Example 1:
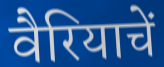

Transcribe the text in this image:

वैरियाचें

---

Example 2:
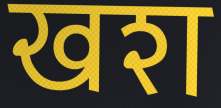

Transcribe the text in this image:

खश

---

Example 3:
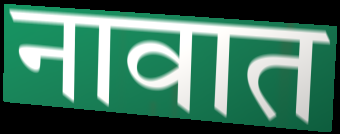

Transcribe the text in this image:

नावात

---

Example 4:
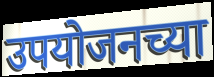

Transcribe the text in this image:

उपयोजनच्या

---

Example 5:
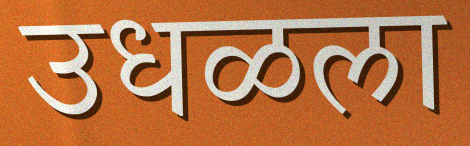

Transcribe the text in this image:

उधळला